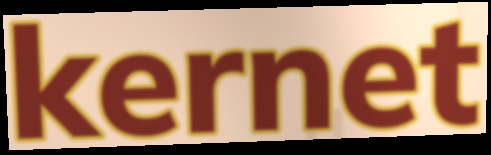
kernet